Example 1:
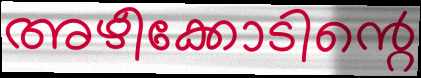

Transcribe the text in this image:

അഴീക്കോടിന്റെ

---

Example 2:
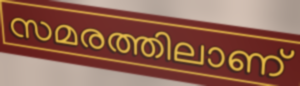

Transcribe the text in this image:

സമരത്തിലാണ്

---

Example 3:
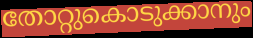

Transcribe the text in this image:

തോറ്റുകൊടുക്കാനും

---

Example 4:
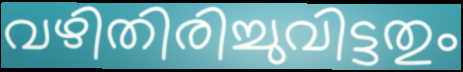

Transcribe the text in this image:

വഴിതിരിച്ചുവിട്ടതും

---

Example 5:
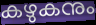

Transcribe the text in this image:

കഴുകനും